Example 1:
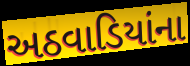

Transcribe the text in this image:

અઠવાડિયાંના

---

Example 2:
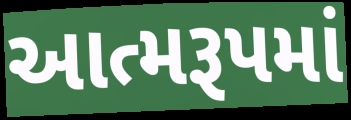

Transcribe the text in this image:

આત્મરૂપમાં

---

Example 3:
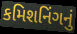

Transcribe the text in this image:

કમિશનિંગનું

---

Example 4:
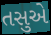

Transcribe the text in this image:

તસુએ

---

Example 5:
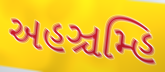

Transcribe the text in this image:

અહઞ્ચમ્હિ